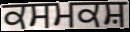
ਕਸਮਕਸ਼